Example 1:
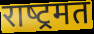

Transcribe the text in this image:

राष्ट्रमत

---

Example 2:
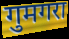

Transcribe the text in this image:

गुमगरा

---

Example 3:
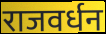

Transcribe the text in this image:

राजवर्धन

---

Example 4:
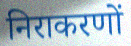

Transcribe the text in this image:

निराकरणों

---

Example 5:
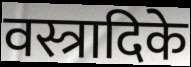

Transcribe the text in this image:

वस्त्रादिके